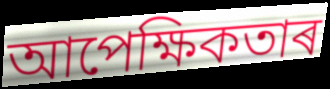
আপেক্ষিকতাৰ